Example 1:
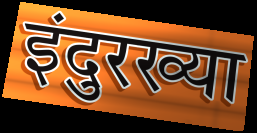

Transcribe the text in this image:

इंदुरख्या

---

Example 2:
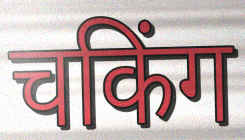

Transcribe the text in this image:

चकिंग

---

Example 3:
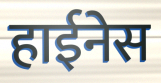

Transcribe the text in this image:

हाईनेस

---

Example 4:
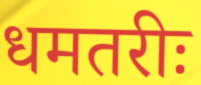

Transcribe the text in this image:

धमतरीः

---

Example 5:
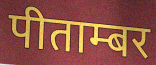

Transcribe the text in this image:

पीताम्बर